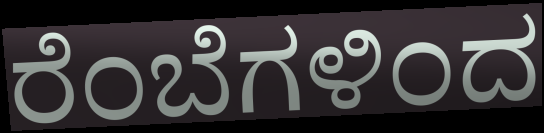
ರೆಂಬೆಗಳಿಂದ